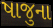
ષાજુના